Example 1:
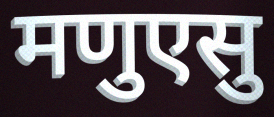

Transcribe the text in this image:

मणुएसु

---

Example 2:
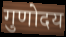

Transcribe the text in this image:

गुणोदय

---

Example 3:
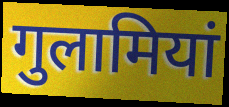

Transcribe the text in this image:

गुलामियां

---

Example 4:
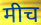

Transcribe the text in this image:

मीच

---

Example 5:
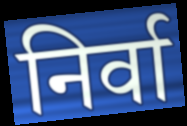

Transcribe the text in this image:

निर्वा